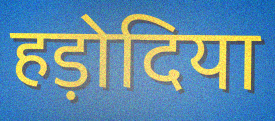
हड़ोदिया